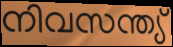
നിവസന്ത്യ്